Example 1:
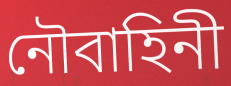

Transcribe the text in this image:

নৌবাহিনী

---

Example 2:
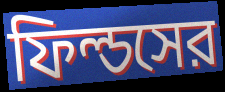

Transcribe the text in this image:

ফিল্ডসের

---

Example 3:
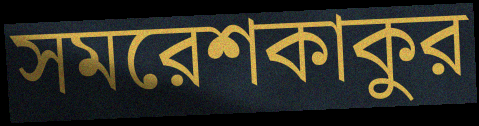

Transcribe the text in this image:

সমরেশকাকুর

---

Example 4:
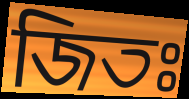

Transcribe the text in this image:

জিতঃ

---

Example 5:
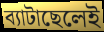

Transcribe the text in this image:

ব্যাটাছেলেই